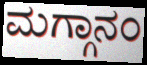
ಮಗ್ಗಾನಂ